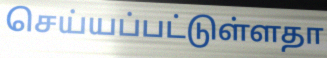
செய்யப்பட்டுள்ளதா